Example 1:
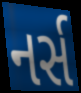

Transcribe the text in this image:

નર્સ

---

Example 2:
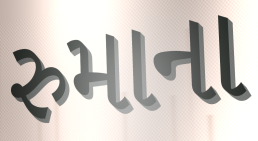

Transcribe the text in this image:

રુમાના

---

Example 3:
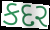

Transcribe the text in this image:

કદર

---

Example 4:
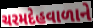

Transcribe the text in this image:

ચરમદેહવાળાને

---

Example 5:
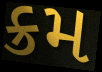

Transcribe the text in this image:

ક્રમ